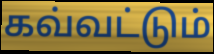
கவ்வட்டும்